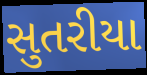
સુતરીયા